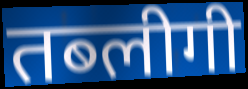
तब्‍लीगी